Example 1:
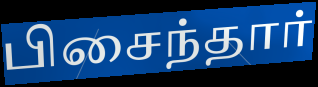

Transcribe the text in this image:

பிசைந்தார்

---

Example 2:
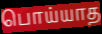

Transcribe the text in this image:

பொய்யாத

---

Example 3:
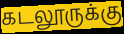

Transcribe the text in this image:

கடலூருக்கு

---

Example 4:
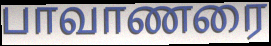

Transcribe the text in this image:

பாவாணரை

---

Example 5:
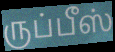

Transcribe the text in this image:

ருப்பீஸ்